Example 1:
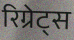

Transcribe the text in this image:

रिग्रेट्स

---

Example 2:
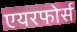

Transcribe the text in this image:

एयरफोर्स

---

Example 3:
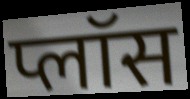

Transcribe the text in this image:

प्लॉस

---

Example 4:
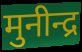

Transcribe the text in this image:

मुनीन्द्र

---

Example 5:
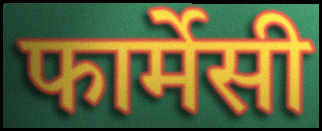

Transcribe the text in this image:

फार्मेसी